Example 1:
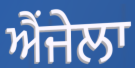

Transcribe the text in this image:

ਐਂਜੇਲਾ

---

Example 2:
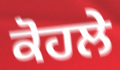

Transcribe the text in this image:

ਕੋਹਲੇ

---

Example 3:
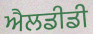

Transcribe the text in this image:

ਐਲਡੀਡੀ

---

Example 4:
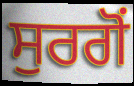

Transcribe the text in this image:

ਸੁਰਗੋਂ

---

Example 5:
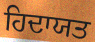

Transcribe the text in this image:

ਹਿਦਾਯਤ